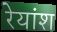
रेयांश